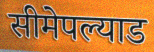
सीमेपल्याड